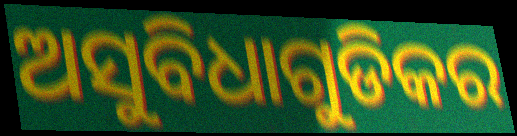
ଅସୁବିଧାଗୁଡିକର